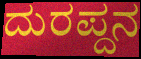
ದುರಪ್ದನ